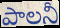
పాలనీ